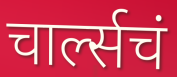
चार्ल्सचं